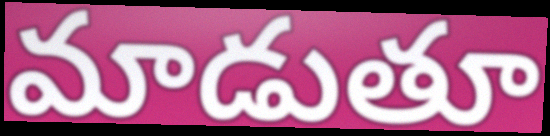
మాడుతూ